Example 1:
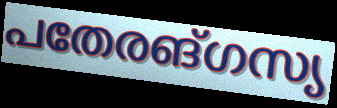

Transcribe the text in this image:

പതേരങ്ഗസ്യ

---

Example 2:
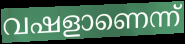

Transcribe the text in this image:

വഷളാണെന്ന്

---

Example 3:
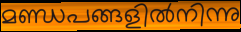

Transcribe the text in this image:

മണ്ഡപങ്ങളിൽനിന്നു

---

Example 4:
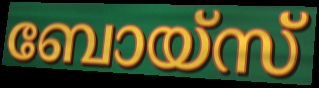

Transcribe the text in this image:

ബോയ്സ്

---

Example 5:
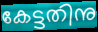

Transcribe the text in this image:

കേട്ടതിനു